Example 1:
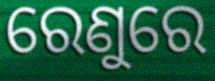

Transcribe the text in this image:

ରେଣୁରେ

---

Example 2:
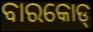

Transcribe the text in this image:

ବାରକୋଡ୍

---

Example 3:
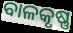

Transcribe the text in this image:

ବାଳକୃଷ୍ଣ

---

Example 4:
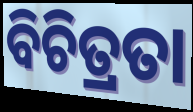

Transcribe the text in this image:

ବିଚିତ୍ରତା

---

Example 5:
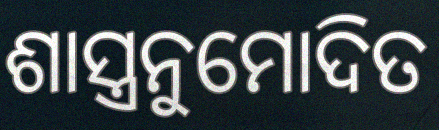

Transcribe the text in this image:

ଶାସ୍ତ୍ରନୁମୋଦିତ